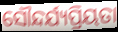
ସୌନ୍ଦର୍ଯ୍ୟପ୍ରିୟତା